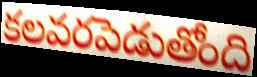
కలవరపెడుతోంది